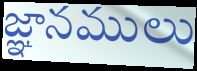
జ్ఞానములు